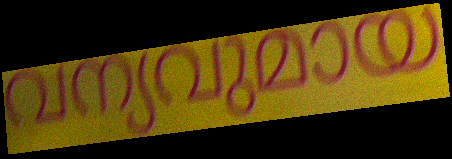
വന്യവുമായ